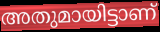
അതുമായിട്ടാണ്